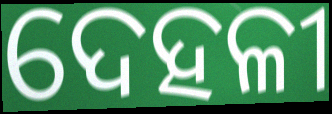
ଦେହଳୀ